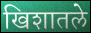
खिशातले